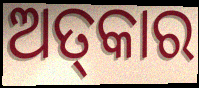
ଅତ୍‌କାର